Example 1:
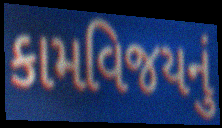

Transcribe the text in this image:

કામવિજયનું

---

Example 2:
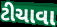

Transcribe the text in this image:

ટીચાવા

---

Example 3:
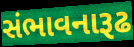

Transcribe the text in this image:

સંભાવનારૂઢ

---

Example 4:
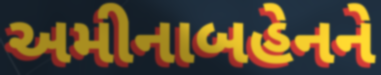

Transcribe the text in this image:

અમીનાબહેનને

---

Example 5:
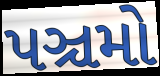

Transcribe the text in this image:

પઞ્ચમો